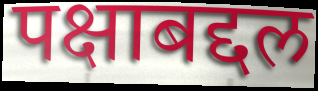
पक्षाबद्दल